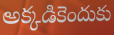
అక్కడికెందుకు